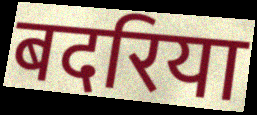
बदरिया